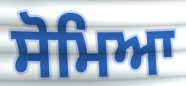
ਸੋਮਿਆ